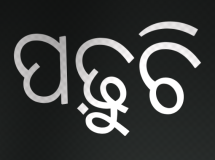
ପଢ଼ୁଚି